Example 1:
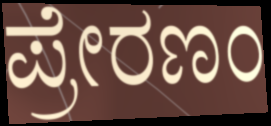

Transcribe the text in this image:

ಪ್ರೇರಣಂ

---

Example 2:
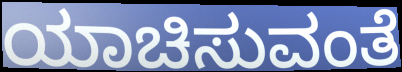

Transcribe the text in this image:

ಯಾಚಿಸುವಂತೆ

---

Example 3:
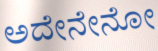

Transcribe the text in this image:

ಅದೇನೇನೋ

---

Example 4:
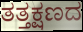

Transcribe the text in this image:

ತತ್ತಕ್ಷಣದ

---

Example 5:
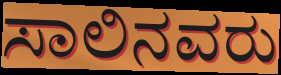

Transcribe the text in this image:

ಸಾಲಿನವರು